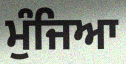
ਮੁੰਜਿਆ